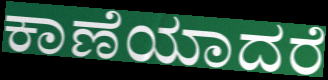
ಕಾಣೆಯಾದರೆ